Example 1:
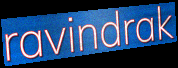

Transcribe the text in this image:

ravindrak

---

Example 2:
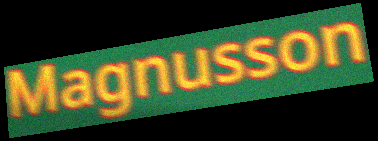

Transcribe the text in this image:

Magnusson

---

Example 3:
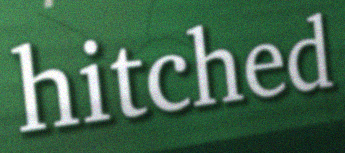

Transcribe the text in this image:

hitched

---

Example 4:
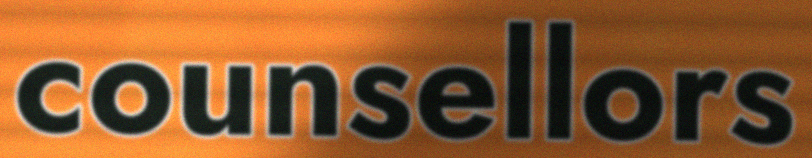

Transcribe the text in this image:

counsellors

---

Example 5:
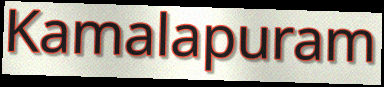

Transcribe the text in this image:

Kamalapuram